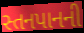
સ્તનપાનની